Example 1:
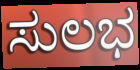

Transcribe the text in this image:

ಸುಲಭ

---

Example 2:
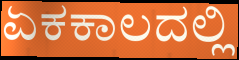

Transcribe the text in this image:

ಏಕಕಾಲದಲ್ಲಿ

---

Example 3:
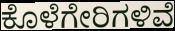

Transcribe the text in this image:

ಕೊಳೆಗೇರಿಗಳಿವೆ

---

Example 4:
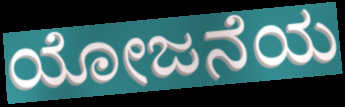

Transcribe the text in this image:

ಯೋಜನೆಯ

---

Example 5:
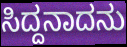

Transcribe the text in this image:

ಸಿದ್ದನಾದನು